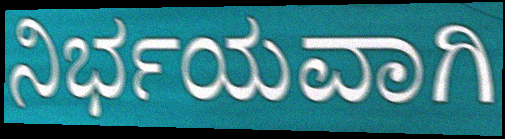
ನಿರ್ಭಯವಾಗಿ